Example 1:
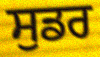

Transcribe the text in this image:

ਸੁਡਰ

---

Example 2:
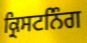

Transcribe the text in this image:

ਕ੍ਰਿਸਟਨਿੰਗ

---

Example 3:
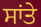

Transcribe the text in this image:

ਸਾਂਤੇ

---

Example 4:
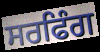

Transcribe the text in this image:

ਸਰਫਿੰਗ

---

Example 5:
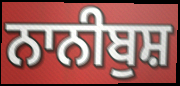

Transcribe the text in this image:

ਨਾਨੀਬੁਸ਼